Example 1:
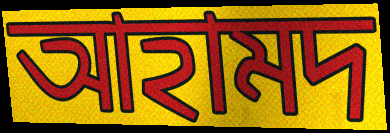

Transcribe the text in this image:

আহামদ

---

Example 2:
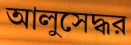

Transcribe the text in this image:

আলুসেদ্ধর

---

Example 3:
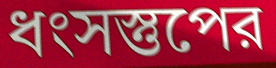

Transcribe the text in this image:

ধংসস্তুপের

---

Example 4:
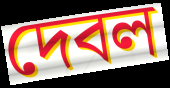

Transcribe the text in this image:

দেবল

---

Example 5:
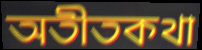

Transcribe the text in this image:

অতীতকথা